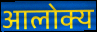
आलोक्य